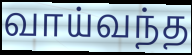
வாய்வந்த